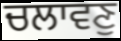
ਚਲਾਵਣੁ